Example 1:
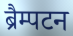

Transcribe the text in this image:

ब्रैम्पटन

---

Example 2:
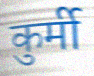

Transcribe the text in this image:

कुर्मी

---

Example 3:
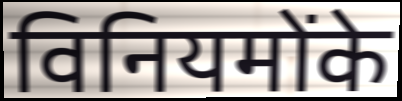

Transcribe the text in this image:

विनियमोंके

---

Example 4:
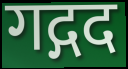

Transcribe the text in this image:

गद्गद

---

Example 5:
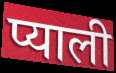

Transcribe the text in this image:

प्याली